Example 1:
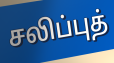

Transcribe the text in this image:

சலிப்புத்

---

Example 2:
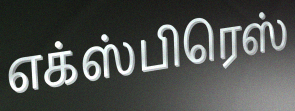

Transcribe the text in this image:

எக்ஸ்பிரெஸ்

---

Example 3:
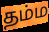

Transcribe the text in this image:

தம்ம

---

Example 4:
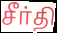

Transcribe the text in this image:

சீர்தி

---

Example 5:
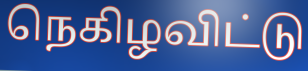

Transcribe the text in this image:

நெகிழவிட்டு